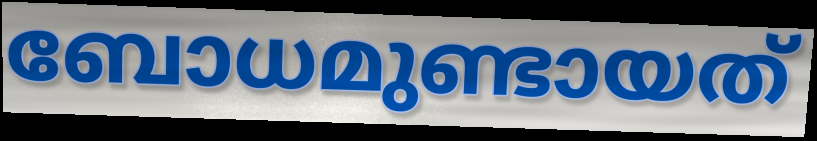
ബോധമുണ്ടായത്